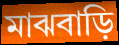
মাঝবাড়ি